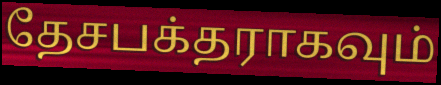
தேசபக்தராகவும்